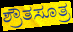
ಶ್ರೌತಸೂತ್ರ